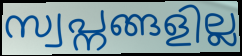
സ്വപ്നങ്ങളില്ല